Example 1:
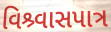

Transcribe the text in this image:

વિશ્ર્વાસપાત્ર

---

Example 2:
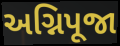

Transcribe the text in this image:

અગ્નિપૂજા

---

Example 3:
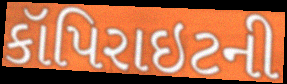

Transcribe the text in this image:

કૉપિરાઇટની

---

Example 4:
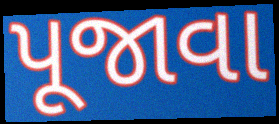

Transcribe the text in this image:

પૂજાવા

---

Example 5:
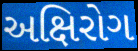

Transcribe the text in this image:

અક્ષિરોગ